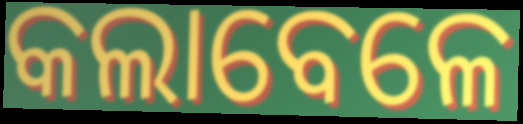
କଲାବେଳେ